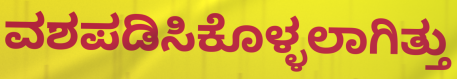
ವಶಪಡಿಸಿಕೊಳ್ಳಲಾಗಿತ್ತು